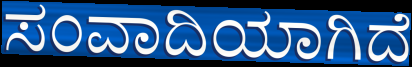
ಸಂವಾದಿಯಾಗಿದೆ